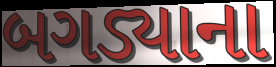
બગડ્યાના